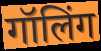
गॉलिंग